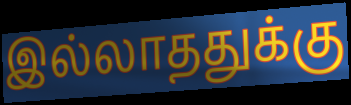
இல்லாததுக்கு